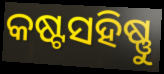
କଷ୍ଟସହିଷ୍ଣୁ